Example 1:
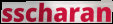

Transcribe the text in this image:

sscharan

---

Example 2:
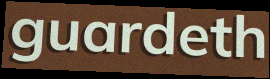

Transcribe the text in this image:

guardeth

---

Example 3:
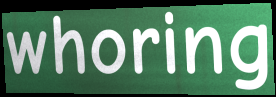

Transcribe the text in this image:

whoring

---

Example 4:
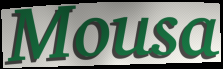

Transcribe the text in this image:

Mousa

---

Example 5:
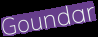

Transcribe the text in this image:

Goundar